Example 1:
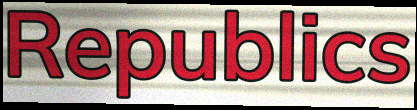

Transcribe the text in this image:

Republics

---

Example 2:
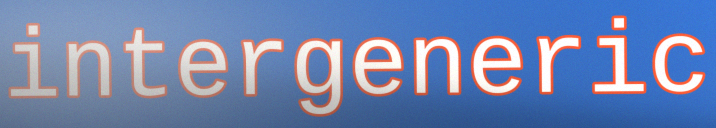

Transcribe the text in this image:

intergeneric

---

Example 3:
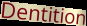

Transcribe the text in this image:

Dentition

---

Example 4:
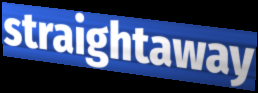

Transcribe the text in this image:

straightaway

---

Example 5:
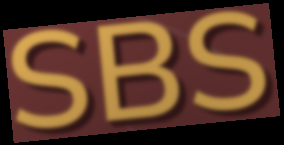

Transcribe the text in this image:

SBS